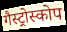
गैस्ट्रोस्कोप